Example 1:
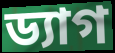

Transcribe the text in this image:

ড্যাগ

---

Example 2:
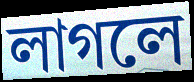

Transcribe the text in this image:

লাগলে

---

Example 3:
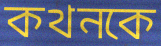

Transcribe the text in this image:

কথনকে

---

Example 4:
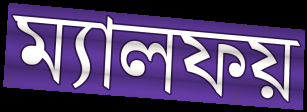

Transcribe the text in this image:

ম্যালফয়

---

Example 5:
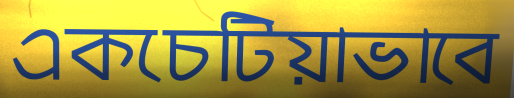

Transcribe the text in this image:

একচেটিয়াভাবে